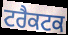
ਟਰੈਕਟਕ